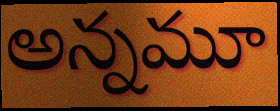
అన్నమూ